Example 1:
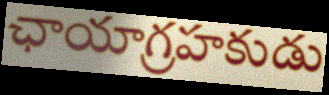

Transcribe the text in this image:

ఛాయాగ్రహకుడు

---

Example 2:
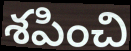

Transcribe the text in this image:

శపించి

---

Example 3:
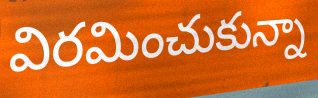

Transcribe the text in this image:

విరమించుకున్నా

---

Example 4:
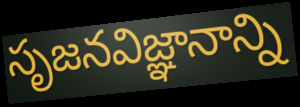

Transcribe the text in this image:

సృజనవిజ్ఞానాన్ని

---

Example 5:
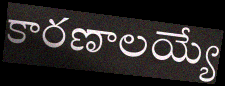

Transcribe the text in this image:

కారణాలయ్యే